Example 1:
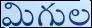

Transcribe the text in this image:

మిగుల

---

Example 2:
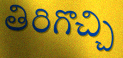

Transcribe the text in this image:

తిరిగొచ్చి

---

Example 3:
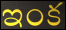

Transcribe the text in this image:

ఇంక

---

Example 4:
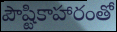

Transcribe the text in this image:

పౌష్టికాహారంతో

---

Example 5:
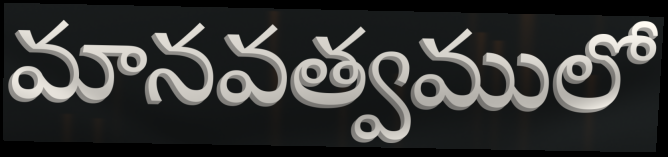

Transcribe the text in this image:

మానవత్వములో